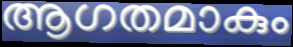
ആഗതമാകും